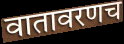
वातावरणच